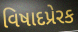
વિષાદપ્રેરક